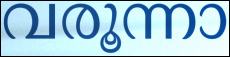
വരൂന്നാ